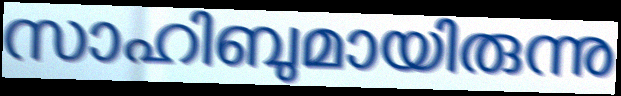
സാഹിബുമായിരുന്നു